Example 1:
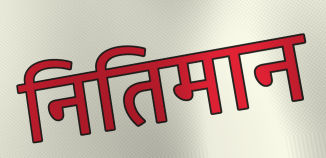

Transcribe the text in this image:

नितिमान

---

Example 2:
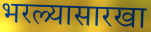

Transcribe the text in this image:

भरल्यासारखा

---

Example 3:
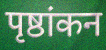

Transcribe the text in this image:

पृष्ठांकन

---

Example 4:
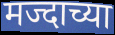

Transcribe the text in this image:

मज्दाच्या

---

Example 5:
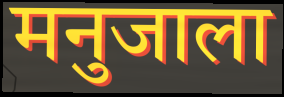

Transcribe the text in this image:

मनुजाला